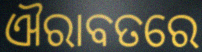
ଐରାବତରେ